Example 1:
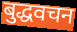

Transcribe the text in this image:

बुद्धवचन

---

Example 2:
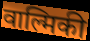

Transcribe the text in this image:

वाल्मिकी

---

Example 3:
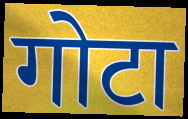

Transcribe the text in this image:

गोटा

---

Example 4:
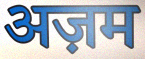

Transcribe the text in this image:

अज़म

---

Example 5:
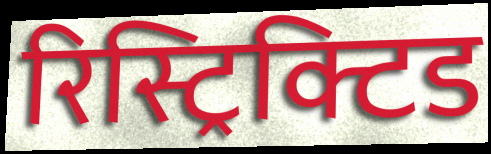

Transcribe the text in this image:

रिस्ट्रिक्टिड